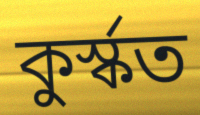
কুৰ্স্কত